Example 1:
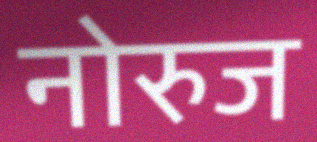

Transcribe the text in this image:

नोरुज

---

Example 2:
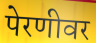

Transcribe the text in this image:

पेरणीवर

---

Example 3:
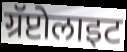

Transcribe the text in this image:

ग्रॅप्टोलाइट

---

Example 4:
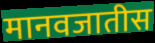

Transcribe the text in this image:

मानवजातीस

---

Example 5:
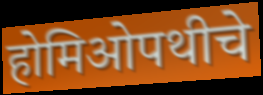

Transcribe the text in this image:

होमिओपथीचे